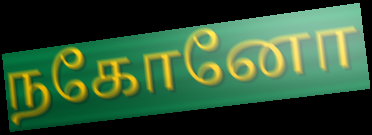
நகோனோ